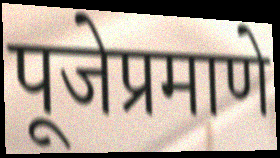
पूजेप्रमाणे